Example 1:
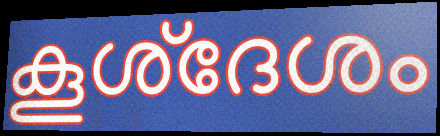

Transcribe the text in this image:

കൂശ്ദേശം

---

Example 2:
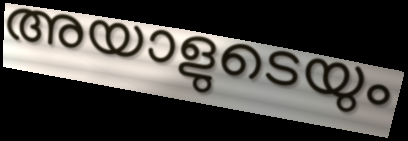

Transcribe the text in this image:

അയാളുടെയും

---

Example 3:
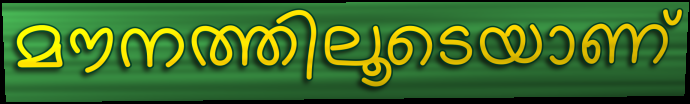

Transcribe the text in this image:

മൗനത്തിലൂടെയാണ്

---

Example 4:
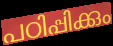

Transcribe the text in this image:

പഠിപ്പിക്കും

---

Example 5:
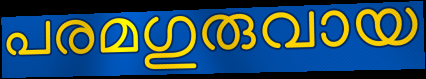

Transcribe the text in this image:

പരമഗുരുവായ